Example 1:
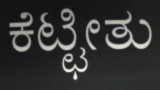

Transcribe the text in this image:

ಕೆಟ್ಟೀತು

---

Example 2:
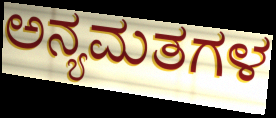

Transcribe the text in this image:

ಅನ್ಯಮತಗಳ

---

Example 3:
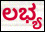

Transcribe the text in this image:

ಲಭ್ಯ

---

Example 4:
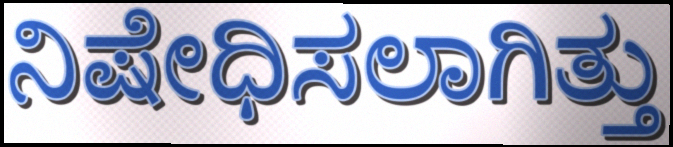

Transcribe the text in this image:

ನಿಷೇಧಿಸಲಾಗಿತ್ತು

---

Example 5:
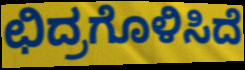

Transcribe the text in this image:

ಛಿದ್ರಗೊಳಿಸಿದೆ